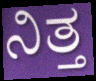
ನಿತ್ತ